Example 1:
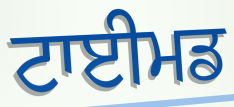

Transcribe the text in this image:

ਟਾਈਮਡ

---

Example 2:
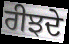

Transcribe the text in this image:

ਰੀਝਦੇ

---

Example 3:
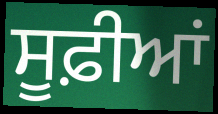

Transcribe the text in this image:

ਸੂਫ਼ੀਆਂ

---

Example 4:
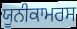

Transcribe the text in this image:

ਯੂਨੀਕਾਮਰਸ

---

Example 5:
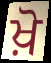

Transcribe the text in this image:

ਖ਼ੋ